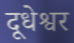
दूधेश्वर